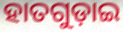
ହାତଗୁଡ଼ାଇ